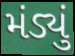
મંડ્યું